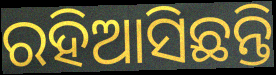
ରହିଆସିଛନ୍ତି